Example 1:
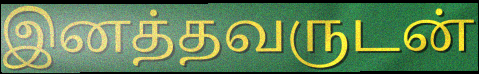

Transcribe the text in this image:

இனத்தவருடன்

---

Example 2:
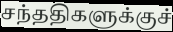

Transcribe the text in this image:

சந்ததிகளுக்குச்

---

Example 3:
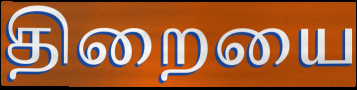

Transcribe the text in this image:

திறையை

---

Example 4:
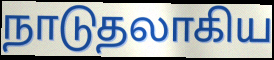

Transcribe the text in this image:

நாடுதலாகிய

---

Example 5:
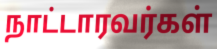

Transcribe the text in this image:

நாட்டாரவர்கள்